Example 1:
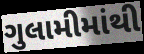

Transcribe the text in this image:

ગુલામીમાંથી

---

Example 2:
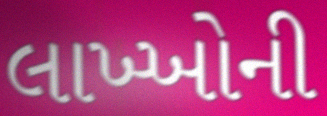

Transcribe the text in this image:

લાખ્ખોની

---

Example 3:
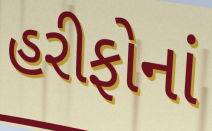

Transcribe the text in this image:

હરીફોનાં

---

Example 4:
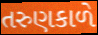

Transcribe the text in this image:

તરુણકાળે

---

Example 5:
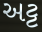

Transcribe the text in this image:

અટ્ટ